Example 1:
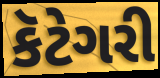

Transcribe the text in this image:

કૅટેગરી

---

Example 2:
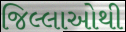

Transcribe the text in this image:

જિલ્લાઓથી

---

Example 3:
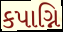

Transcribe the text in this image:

કપાગ્નિ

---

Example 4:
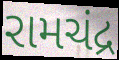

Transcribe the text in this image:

રામચંદ્ર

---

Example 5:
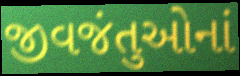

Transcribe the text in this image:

જીવજંતુઓનાં